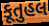
કૂતુહલ